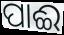
ପାଈ